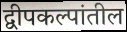
द्वीपकल्पांतील